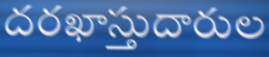
దరఖాస్తుదారుల